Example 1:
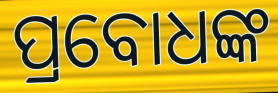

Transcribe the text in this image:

ପ୍ରବୋଧଙ୍କ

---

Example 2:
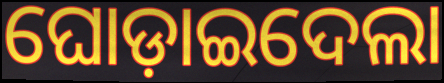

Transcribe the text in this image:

ଘୋଡ଼ାଇଦେଲା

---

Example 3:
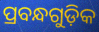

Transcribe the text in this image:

ପ୍ରବନ୍ଧଗୁଡ଼ିକ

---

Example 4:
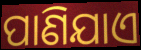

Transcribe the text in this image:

ପାଣିଯାଏ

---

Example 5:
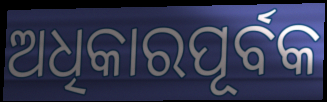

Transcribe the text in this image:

ଅଧିକାରପୂର୍ବକ